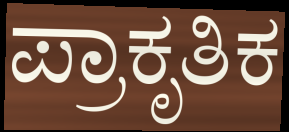
ಪ್ರಾಕೃತಿಕ